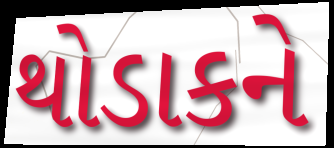
થોડાકને